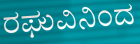
ರಘುವಿನಿಂದ